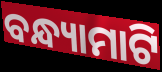
ବନ୍ଧ୍ୟାମାଟି